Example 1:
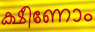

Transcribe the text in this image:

ക്ഷീണോം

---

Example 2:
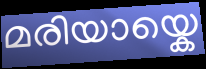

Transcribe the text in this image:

മരിയായ്കെ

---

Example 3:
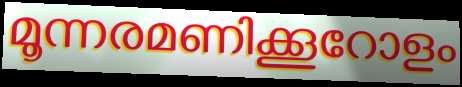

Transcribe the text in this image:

മൂന്നരമണിക്കൂറോളം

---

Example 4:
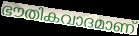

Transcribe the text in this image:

ഭൗതികവാദമാണ്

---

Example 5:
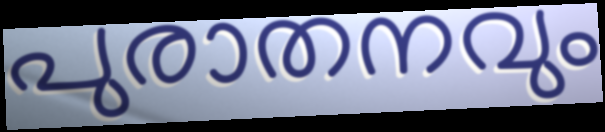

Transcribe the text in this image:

പുരാതനവും